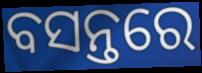
ବସନ୍ତରେ